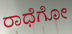
ರಾಧೆಗೋ